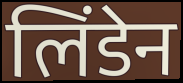
लिंडेन